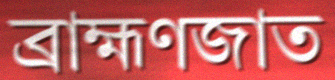
ব্রাহ্মণজাত